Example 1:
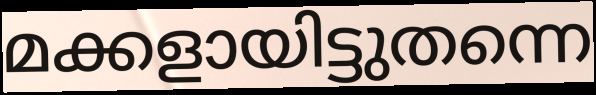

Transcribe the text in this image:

മക്കളായിട്ടുതന്നെ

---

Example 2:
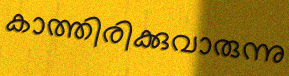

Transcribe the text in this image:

കാത്തിരിക്കുവാരുന്നു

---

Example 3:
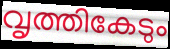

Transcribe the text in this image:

വൃത്തികേടും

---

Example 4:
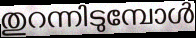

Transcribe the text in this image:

തുറന്നിടുമ്പോൾ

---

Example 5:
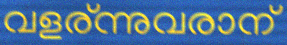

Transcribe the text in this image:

വളര്ന്നുവരാന്